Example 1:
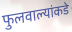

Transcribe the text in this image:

फुलवाल्यांकडे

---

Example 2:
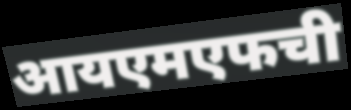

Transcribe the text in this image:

आयएमएफची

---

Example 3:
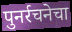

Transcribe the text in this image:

पुनर्रचनेचा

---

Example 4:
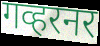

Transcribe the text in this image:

गव्हरनर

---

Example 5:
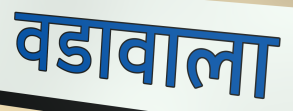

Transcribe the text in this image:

वडावाला